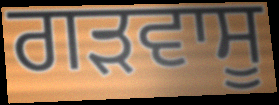
ਗੜਵਾਸੂ